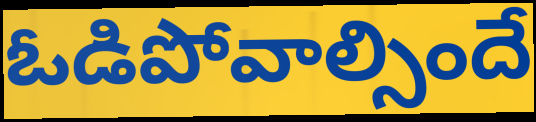
ఓడిపోవాల్సిందే